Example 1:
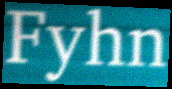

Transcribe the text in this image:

Fyhn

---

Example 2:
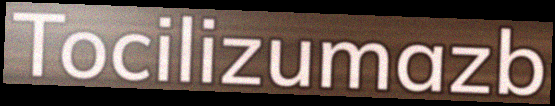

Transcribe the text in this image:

Tocilizumazb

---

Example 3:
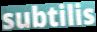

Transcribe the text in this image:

subtilis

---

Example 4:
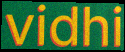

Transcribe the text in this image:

vidhi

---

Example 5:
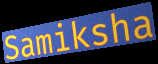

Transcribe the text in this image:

Samiksha